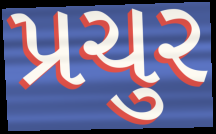
પ્રચુર